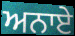
ਅਨਾਏ